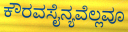
ಕೌರವಸೈನ್ಯವೆಲ್ಲವೂ